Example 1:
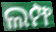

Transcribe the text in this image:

ଲମ୍ଫ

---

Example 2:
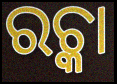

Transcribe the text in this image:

ରଚ୍କା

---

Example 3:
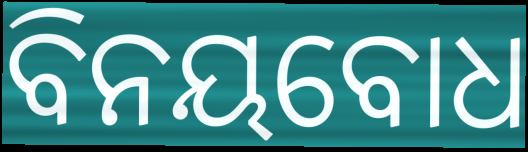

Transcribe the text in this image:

ବିନୟବୋଧ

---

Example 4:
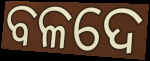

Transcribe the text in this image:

ବଳଦେ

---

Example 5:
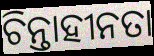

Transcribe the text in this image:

ଚିନ୍ତାହୀନତା